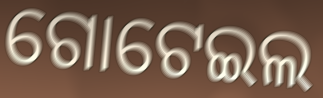
ଗୋଟେଇଲ